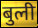
बुली